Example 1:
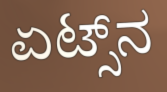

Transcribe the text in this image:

ಏಟ್ಸ್‌ನ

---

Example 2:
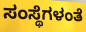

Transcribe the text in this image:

ಸಂಸ್ಥೆಗಳಂತೆ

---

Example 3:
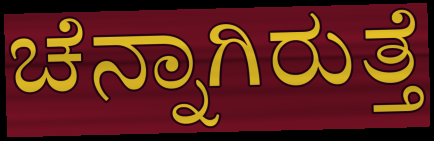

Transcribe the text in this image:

ಚೆನ್ನಾಗಿರುತ್ತೆ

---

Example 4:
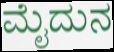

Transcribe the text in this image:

ಮೈದುನ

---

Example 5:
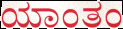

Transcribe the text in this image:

ಯಾಂತಂ